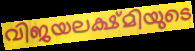
വിജയലക്ഷ്മിയുടെ